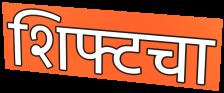
शिफ्टचा